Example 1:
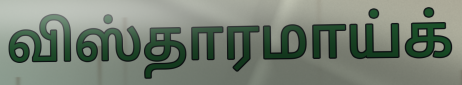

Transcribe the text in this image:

விஸ்தாரமாய்க்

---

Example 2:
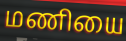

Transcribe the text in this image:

மணியை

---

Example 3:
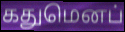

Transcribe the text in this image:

கதுமெனப்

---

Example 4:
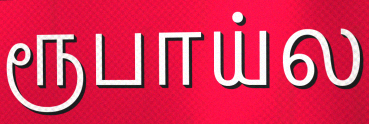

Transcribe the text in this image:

ரூபாய்ல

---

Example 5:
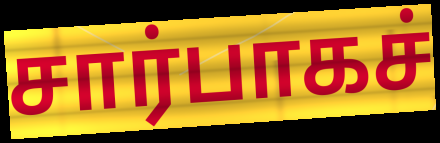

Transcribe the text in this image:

சார்பாகச்